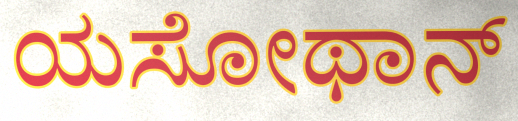
ಯಸೋಥಾನ್